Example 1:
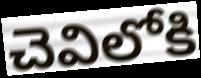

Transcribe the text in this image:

చెవిలోకి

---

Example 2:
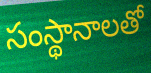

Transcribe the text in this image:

సంస్థానాలతో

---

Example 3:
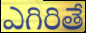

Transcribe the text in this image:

ఎగిరితే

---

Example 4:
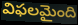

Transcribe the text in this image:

విఫలమైంది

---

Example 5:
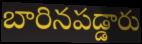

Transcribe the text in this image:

బారినపడ్డారు